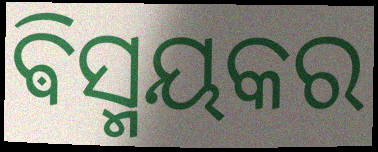
ଵିସ୍ମୟକର